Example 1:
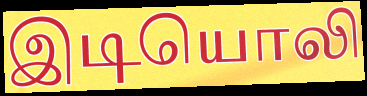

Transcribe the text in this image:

இடியொலி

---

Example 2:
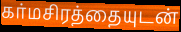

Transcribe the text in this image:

கர்மசிரத்தையுடன்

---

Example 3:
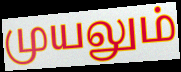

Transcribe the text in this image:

முயலும்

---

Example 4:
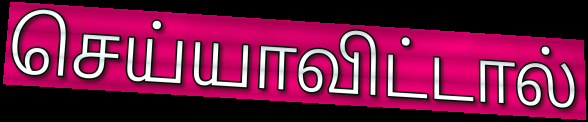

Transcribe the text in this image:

செய்யாவிட்டால்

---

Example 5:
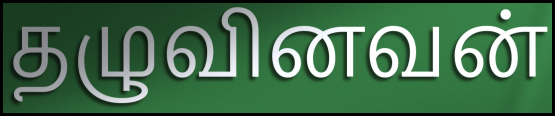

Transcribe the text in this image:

தழுவினவன்